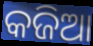
କଜିଆ